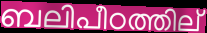
ബലിപീഠത്തില്